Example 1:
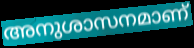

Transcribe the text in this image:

അനുശാസനമാണ്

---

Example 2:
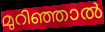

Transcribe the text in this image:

മുറിഞ്ഞാൽ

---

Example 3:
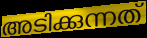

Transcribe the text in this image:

അടിക്കുന്നത്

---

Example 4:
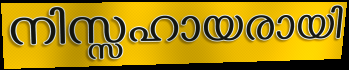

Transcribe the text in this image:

നിസ്സഹായരായി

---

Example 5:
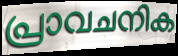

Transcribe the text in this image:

പ്രാവചനിക